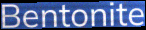
Bentonite